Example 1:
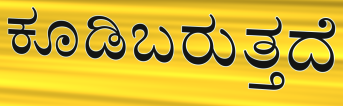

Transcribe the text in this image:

ಕೂಡಿಬರುತ್ತದೆ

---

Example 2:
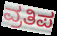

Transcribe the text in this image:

ವ್ರತಿಪ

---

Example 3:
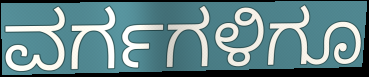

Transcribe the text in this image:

ವರ್ಗಗಳಿಗೂ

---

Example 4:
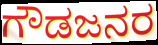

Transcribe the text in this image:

ಗೌಡಜನರ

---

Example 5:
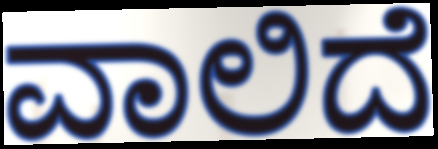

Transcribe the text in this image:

ವಾಲಿದೆ